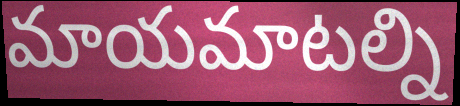
మాయమాటల్ని